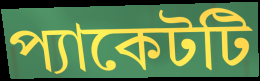
প্যাকেটটি